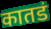
कातडं